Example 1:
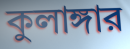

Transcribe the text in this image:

কুলাঙ্গার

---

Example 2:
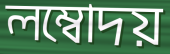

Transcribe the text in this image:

লম্বোদয়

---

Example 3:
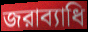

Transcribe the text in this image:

জরাব্যাধি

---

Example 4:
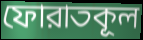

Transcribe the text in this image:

ফোরাতকূল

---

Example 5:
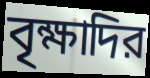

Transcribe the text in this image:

বৃক্ষাদির